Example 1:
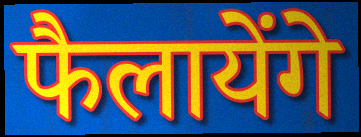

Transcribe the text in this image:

फैलायेंगे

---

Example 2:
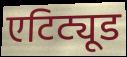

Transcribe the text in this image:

एटिट्यूड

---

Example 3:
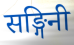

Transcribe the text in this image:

सङ्गिनी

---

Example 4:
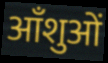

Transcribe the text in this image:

आँशुओं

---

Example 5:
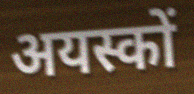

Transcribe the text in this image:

अयस्कों